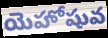
యెహోషువ